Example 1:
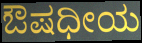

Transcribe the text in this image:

ಔಷಧೀಯ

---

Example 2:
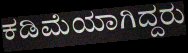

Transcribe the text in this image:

ಕಡಿಮೆಯಾಗಿದ್ದರು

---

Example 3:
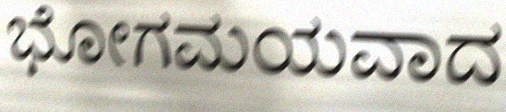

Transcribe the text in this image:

ಭೋಗಮಯವಾದ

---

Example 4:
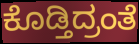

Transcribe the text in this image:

ಕೊಡ್ತಿದ್ರಂತೆ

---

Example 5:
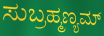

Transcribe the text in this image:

ಸುಬ್ರಹ್ಮಣ್ಯಮ್